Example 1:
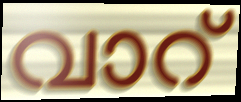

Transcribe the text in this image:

വാറ്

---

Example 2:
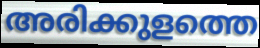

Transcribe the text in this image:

അരിക്കുളത്തെ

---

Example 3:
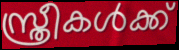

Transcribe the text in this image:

സ്ത്രീകൾക്ക്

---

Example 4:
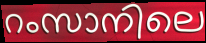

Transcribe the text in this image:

റംസാനിലെ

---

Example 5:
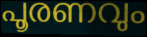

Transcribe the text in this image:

പൂരണവും